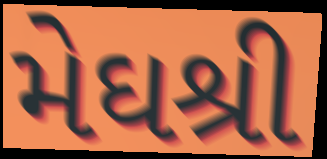
મેઘશ્રી